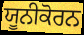
ਯੂਨੀਕੋਰਨ